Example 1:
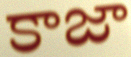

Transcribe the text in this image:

కాజా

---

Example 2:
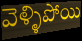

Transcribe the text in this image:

వెళ్ళిపోయి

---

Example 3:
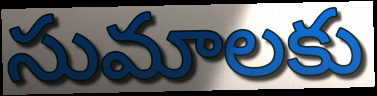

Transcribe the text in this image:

సుమాలకు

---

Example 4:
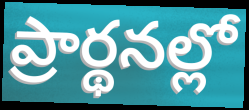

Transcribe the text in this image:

ప్రార్థనల్లో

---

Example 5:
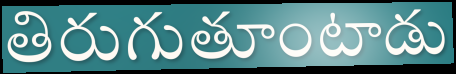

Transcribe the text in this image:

తిరుగుతూంటాడు